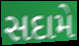
સદામે